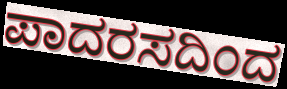
ಪಾದರಸದಿಂದ